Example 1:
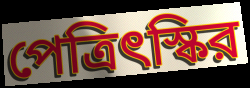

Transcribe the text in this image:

পেত্রিৎস্কির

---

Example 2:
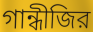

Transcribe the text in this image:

গান্ধীজির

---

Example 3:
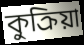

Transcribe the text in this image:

কুক্রিয়া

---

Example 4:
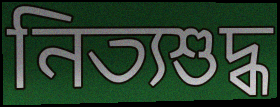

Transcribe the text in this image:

নিত্যশুদ্ধ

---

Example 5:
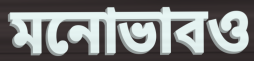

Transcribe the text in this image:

মনোভাবও